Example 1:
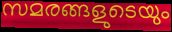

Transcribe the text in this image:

സമരങ്ങളുടെയും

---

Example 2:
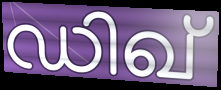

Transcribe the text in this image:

ഡിഖ്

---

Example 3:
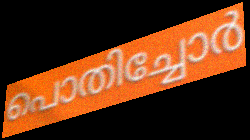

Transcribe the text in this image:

പൊതിച്ചോർ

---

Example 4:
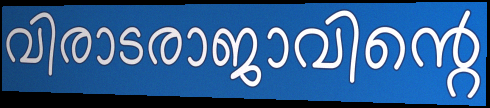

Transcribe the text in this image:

വിരാടരാജാവിന്റെ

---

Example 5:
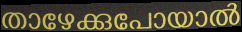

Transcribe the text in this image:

താഴേക്കുപോയാൽ